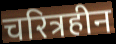
चरित्रहीन